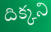
దిక్కని